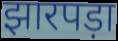
झारपड़ा